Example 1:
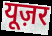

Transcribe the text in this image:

यूज़र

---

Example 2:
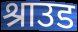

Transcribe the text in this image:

श्राउड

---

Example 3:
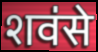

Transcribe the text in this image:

शव॑से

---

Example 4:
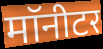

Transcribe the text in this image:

मॉनीटर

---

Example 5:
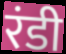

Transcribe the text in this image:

रंडी